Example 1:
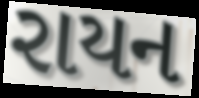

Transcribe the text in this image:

રાયન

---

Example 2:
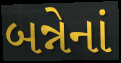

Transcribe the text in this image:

બન્નેનાં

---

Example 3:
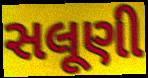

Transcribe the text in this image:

સલૂણી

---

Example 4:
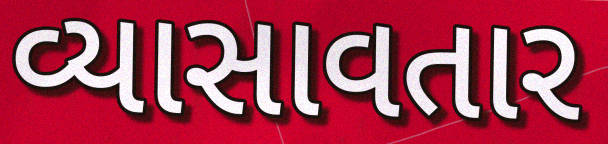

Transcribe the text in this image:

વ્યાસાવતાર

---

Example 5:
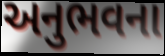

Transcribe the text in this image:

અનુભવના